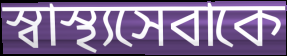
স্বাস্থ্যসেবাকে